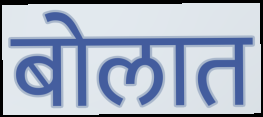
बोलात